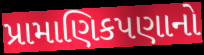
પ્રામાણિકપણાનો